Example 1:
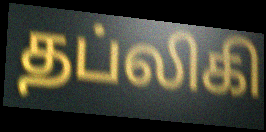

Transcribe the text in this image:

தப்லிகி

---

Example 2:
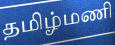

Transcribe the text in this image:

தமிழ்மணி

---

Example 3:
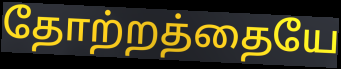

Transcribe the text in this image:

தோற்றத்தையே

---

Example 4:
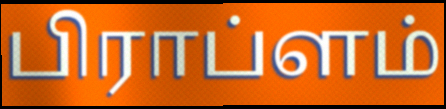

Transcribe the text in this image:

பிராப்ளம்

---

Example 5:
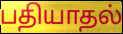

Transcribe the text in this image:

பதியாதல்